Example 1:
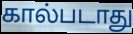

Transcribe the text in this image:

கால்படாது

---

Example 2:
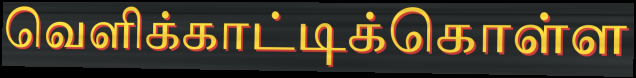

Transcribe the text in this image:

வெளிக்காட்டிக்கொள்ள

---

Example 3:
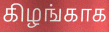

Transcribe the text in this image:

கிழங்காக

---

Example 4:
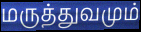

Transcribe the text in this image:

மருத்துவமும்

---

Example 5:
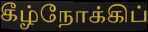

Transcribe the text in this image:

கீழ்நோக்கிப்